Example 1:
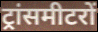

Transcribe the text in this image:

ट्रांसमीटरों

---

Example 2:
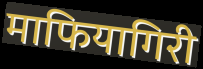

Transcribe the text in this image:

माफियागिरी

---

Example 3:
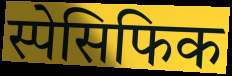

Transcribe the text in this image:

स्पेसिफिक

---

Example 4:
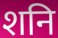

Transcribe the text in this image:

शनि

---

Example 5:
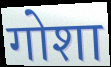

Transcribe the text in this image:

गोशा